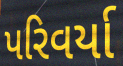
પરિવર્યા